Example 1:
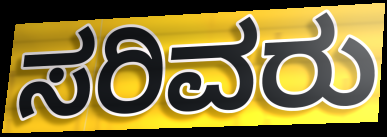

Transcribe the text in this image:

ಸರಿವರು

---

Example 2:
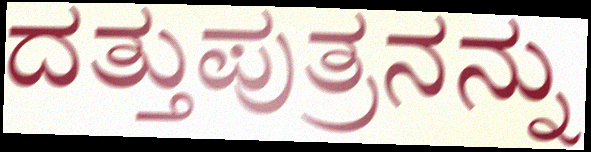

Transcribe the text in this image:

ದತ್ತುಪುತ್ರನನ್ನು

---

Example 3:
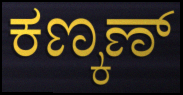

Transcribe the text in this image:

ಕಣ್ಕಣ್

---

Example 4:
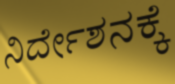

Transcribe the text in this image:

ನಿರ್ದೇಶನಕ್ಕೆ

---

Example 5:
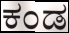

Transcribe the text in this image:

ಕಂಡ